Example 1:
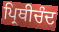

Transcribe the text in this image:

ਪ੍ਰਿਥੀਚੰਦ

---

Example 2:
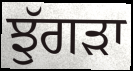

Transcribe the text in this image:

ਝੁੱਗੜਾ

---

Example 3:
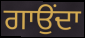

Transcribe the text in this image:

ਗਾਉਂਦਾ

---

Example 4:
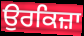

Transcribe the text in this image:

ਉਰਕਿਜ਼ਾ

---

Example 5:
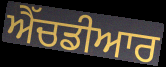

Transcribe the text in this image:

ਐੱਚਡੀਆਰ